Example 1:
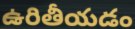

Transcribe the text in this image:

ఉరితీయడం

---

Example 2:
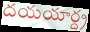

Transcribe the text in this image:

దయయార్ద్ర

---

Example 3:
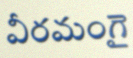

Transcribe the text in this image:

వీరమంగై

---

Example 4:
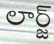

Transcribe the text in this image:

లార్జ్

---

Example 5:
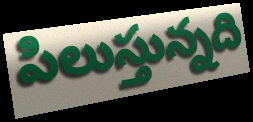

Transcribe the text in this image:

పిలుస్తున్నది